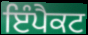
ਇੰਪੈਕਟ